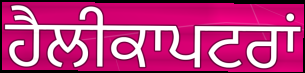
ਹੈਲੀਕਾਪਟਰਾਂ